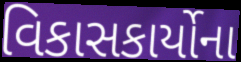
વિકાસકાર્યોના